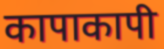
कापाकापी